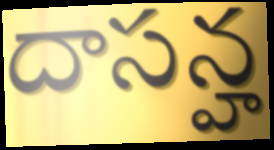
దాసన్హ